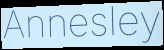
Annesley